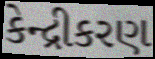
કેન્દ્રીકરણ